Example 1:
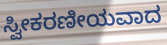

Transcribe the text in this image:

ಸ್ವೀಕರಣೀಯವಾದ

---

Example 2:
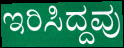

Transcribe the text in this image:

ಇರಿಸಿದ್ದವು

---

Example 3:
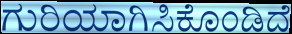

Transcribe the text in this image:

ಗುರಿಯಾಗಿಸಿಕೊಂಡಿದೆ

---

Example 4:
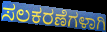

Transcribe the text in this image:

ಸಲಕರಣೆಗಳಾಗಿ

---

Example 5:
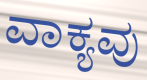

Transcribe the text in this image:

ವಾಕ್ಯವು